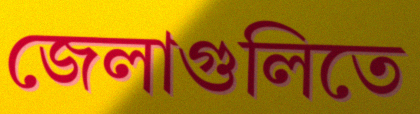
জেলাগুলিতে